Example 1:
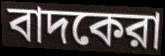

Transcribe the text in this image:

বাদকেরা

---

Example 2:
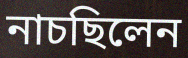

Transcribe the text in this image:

নাচছিলেন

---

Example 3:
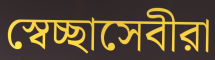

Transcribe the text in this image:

স্বেচ্ছাসেবীরা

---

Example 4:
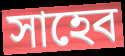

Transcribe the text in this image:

সাহেব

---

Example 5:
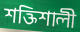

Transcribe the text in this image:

শক্তিশালী